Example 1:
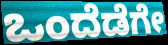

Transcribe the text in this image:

ಒಂದೆಡೆಗೇ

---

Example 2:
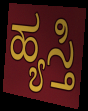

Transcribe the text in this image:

ಹ್ಯಸ್ತಿ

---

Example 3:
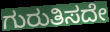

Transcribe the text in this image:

ಗುರುತಿಸದೇ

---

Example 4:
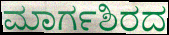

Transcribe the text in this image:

ಮಾರ್ಗಶಿರದ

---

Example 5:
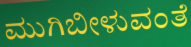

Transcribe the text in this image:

ಮುಗಿಬೀಳುವಂತೆ